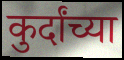
कुर्दांच्या